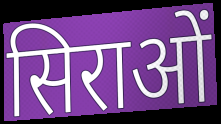
सिराओं